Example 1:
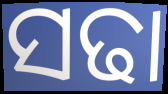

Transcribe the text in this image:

ସଢା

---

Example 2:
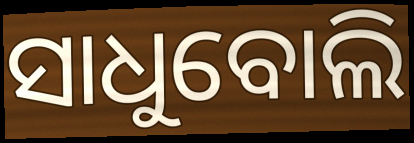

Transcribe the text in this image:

ସାଧୁବୋଲି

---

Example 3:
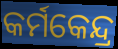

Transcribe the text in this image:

କର୍ମକେନ୍ଦ୍ର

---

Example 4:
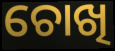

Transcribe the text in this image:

ଚୋଖି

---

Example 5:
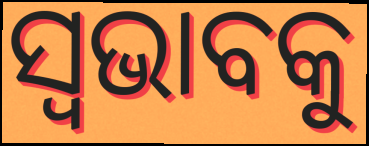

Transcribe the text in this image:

ସ୍ୱଭାବକୁ